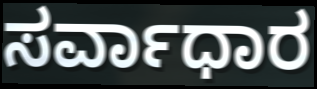
ಸರ್ವಾಧಾರ